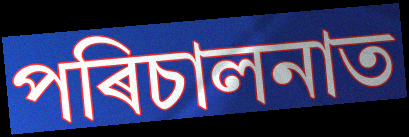
পৰিচালনাত